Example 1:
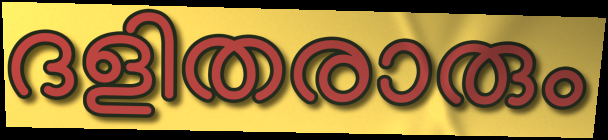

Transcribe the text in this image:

ദളിതരാരും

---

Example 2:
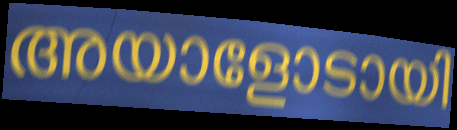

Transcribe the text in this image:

അയാളോടായി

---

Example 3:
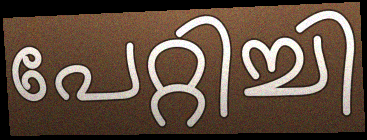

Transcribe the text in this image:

പേറ്റിച്ചി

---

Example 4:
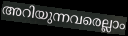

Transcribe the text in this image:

അറിയുന്നവരെല്ലാം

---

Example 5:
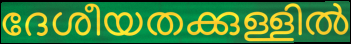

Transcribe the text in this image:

ദേശീയതക്കുള്ളിൽ